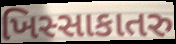
ખિસ્સાકાતરુ